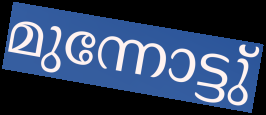
മുന്നോട്ടു്